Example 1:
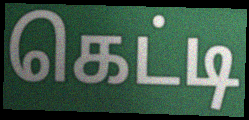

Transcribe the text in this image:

கெட்டி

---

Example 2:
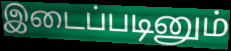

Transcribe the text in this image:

இடைப்படினும்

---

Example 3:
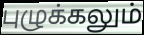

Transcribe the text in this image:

புழுக்கலும்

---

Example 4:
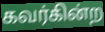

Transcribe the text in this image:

கவர்கின்ற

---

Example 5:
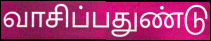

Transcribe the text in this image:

வாசிப்பதுண்டு